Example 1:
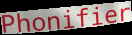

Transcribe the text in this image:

Phonifier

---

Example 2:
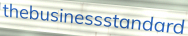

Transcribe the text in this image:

thebusinessstandard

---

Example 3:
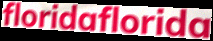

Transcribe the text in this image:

floridaflorida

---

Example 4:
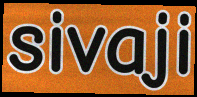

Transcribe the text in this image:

sivaji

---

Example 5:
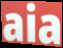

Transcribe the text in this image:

aia